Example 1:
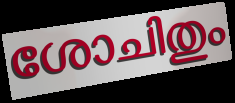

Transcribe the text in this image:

ശോചിതും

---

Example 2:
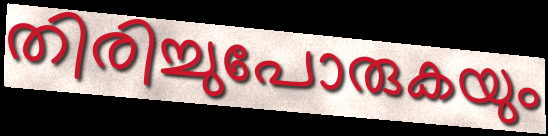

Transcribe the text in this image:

തിരിച്ചുപോരുകയും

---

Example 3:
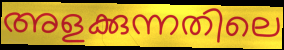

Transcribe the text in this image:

അളക്കുന്നതിലെ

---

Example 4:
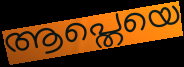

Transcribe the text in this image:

ആപ്തെയെ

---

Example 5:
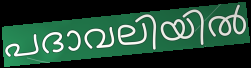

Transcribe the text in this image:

പദാവലിയിൽ